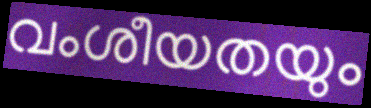
വംശീയതയും